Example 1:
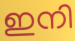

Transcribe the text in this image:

ഇനി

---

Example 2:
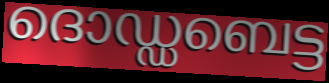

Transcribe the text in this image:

ദൊഡ്ഡബെട്ട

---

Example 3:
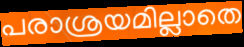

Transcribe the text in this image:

പരാശ്രയമില്ലാതെ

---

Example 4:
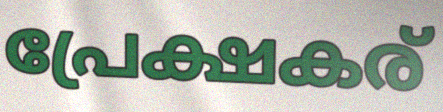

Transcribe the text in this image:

പ്രേക്ഷകര്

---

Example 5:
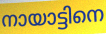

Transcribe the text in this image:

നായാട്ടിനെ